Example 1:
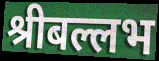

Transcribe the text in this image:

श्रीबल्लभ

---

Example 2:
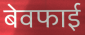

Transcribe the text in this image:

बेवफाई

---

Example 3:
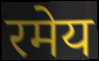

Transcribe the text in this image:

रमेय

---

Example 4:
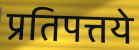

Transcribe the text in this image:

प्रतिपत्तये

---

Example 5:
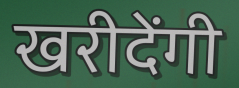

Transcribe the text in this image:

खरीदेंगी